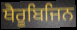
ਥੈਰੂਬਿਜਿਨ